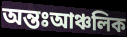
অন্তঃআঞ্চলিক